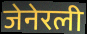
जेनेरली